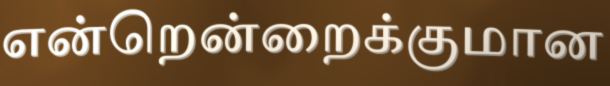
என்றென்றைக்குமான